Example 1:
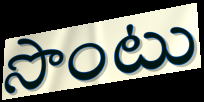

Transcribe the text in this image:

సొంటు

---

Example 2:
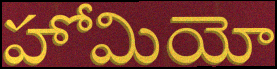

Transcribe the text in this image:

హోమియో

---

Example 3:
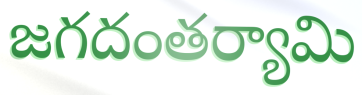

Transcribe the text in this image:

జగదంతర్యామి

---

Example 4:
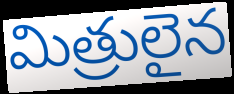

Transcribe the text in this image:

మిత్రులైన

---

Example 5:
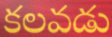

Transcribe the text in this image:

కలవడు